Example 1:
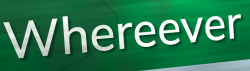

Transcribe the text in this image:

Whereever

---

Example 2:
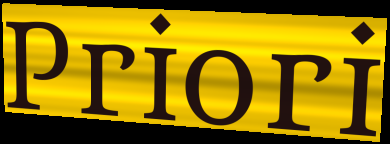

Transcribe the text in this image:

Priori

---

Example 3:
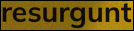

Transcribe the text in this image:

resurgunt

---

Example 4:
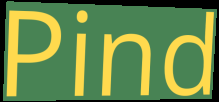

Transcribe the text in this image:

Pind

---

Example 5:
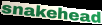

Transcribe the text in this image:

snakehead